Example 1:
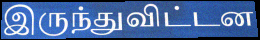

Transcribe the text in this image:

இருந்துவிட்டன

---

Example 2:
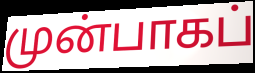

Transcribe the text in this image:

முன்பாகப்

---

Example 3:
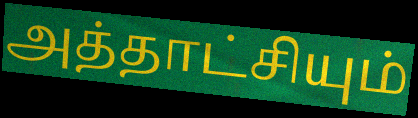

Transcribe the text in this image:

அத்தாட்சியும்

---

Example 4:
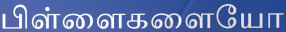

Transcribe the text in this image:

பிள்ளைகளையோ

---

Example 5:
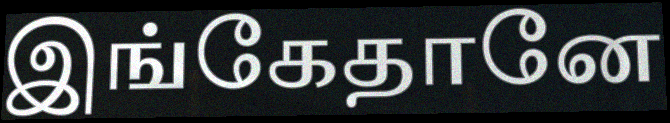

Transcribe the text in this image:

இங்கேதானே